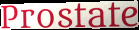
Prostate